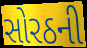
સોરઠની